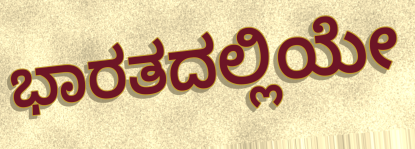
ಭಾರತದಲ್ಲಿಯೇ